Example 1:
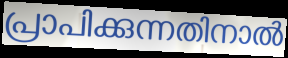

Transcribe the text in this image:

പ്രാപിക്കുന്നതിനാൽ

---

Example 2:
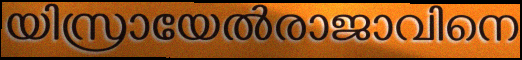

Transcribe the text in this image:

യിസ്രായേൽരാജാവിനെ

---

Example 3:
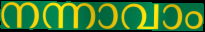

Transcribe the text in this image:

നന്നാവാം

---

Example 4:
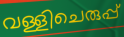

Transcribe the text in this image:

വള്ളിചെരുപ്പ്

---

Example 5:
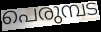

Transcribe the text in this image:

പെരുമ്പട